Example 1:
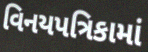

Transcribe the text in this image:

વિનયપત્રિકામાં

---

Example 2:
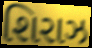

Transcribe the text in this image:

શિરાઝ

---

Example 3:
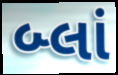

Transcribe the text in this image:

બ્લાં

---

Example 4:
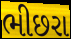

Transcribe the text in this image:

ભીછરા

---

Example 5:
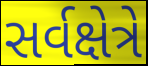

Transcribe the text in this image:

સર્વક્ષેત્રે